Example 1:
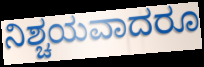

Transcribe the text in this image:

ನಿಶ್ಚಯವಾದರೂ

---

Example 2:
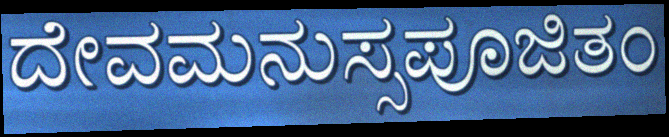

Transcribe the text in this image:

ದೇವಮನುಸ್ಸಪೂಜಿತಂ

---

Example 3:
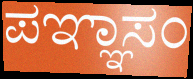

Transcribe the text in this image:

ಪಞ್ಞಾಸಂ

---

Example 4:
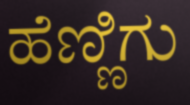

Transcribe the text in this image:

ಹೆಣ್ಣಿಗು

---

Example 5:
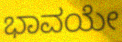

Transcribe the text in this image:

ಭಾವಯೇ